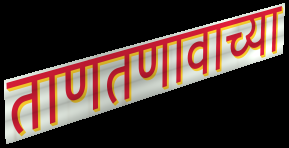
ताणतणावाच्या